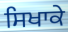
ਸਿਖਾਕੇ